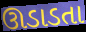
ઊડાડતા